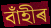
বাঁহীৰ